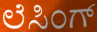
ಲೆಸಿಂಗ್